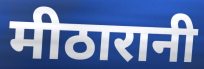
मीठारानी